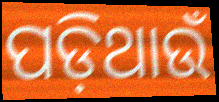
ପଡ଼ିଥାଉଁ